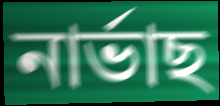
নাৰ্ভাছ